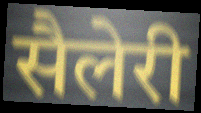
सैलेरी